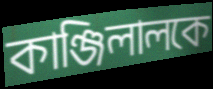
কাঞ্জিলালকে